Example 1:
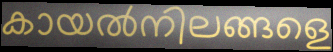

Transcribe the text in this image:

കായൽനിലങ്ങളെ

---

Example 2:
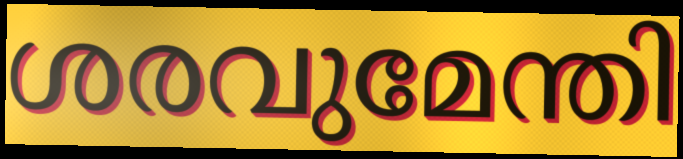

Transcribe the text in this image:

ശരവുമേന്തി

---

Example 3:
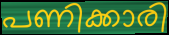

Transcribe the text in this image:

പണിക്കാരി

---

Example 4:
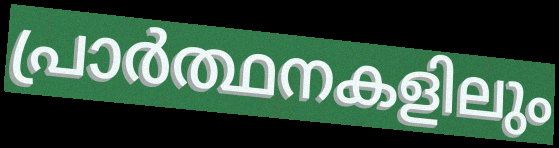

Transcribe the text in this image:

പ്രാർത്ഥനകളിലും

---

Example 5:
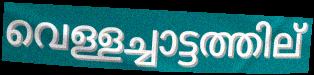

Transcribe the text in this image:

വെള്ളച്ചാട്ടത്തില്